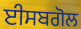
ਈਸਬਗੋਲ